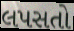
લપસતો